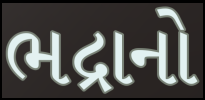
ભદ્રાનો